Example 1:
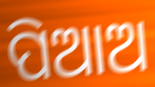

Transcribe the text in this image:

ପିଆଅ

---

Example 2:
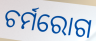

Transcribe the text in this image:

ଚର୍ମରୋଗ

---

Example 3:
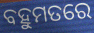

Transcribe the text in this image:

ବହୁମତରେ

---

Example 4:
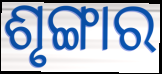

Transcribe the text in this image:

ଶୃଙ୍ଗାର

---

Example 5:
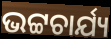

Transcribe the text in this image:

ଭଟ୍ଟଚାର୍ଯ୍ୟ